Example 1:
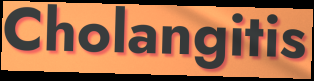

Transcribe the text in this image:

Cholangitis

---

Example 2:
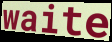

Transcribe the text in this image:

waite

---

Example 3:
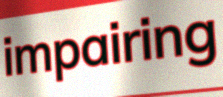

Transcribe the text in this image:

impairing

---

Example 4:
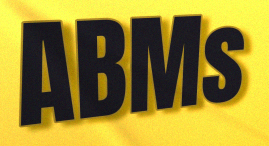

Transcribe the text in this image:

ABMs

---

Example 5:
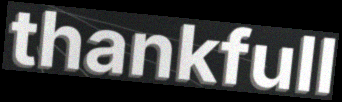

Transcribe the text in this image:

thankfull